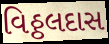
વિઠ્ઠલદાસ